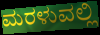
ಮರಳುವಲ್ಲಿ